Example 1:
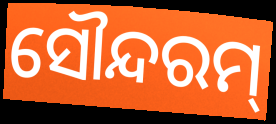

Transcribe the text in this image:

ସୌନ୍ଦରମ୍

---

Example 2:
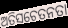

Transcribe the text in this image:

ଅତିସଚେତନତା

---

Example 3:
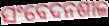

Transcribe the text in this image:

ସଂବେଦନଶୀଳ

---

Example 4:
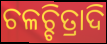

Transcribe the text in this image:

ଚଳଚ୍ଚିତ୍ରାଦି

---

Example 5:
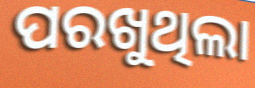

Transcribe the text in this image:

ପରଖୁଥିଲା